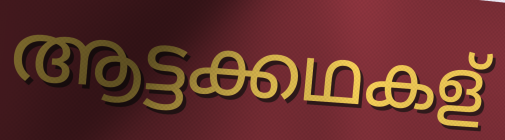
ആട്ടക്കഥകള്